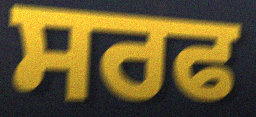
ਸਰਫ